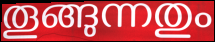
തൂങ്ങുന്നതും